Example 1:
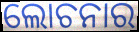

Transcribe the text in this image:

ଲୋଚନାର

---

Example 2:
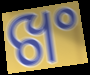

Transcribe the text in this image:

ଖଂ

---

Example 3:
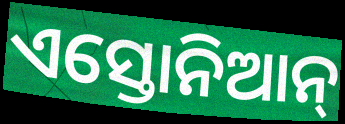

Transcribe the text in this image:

ଏସ୍ତୋନିଆନ୍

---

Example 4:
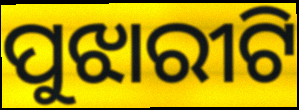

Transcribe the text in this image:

ପୁଝାରୀଟି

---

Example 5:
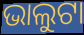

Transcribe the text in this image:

ଭାଲୁଟା